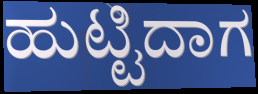
ಹುಟ್ಟಿದಾಗ